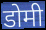
डोमी